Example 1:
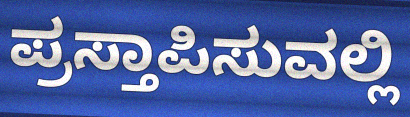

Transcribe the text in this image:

ಪ್ರಸ್ತಾಪಿಸುವಲ್ಲಿ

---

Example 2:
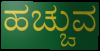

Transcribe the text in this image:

ಹಚ್ಚುವ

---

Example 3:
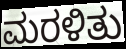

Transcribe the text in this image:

ಮರಳಿತು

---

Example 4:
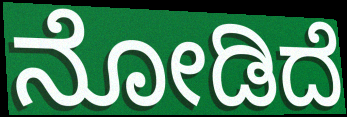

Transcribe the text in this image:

ನೋಡಿದೆ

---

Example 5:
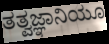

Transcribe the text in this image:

ತತ್ವಜ್ಞಾನಿಯೂ